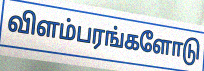
விளம்பரங்களோடு